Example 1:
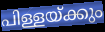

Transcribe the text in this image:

പിള്ളയ്ക്കും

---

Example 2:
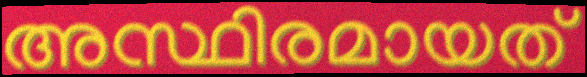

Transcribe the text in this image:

അസ്ഥിരമായത്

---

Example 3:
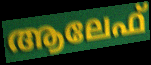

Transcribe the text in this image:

ആലേഫ്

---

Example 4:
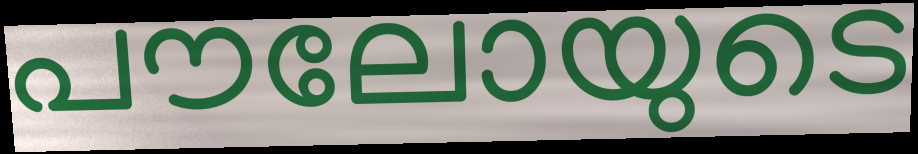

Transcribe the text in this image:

പൗലോയുടെ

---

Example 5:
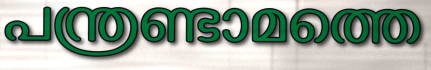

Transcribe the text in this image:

പന്ത്രണ്ടാമത്തെ